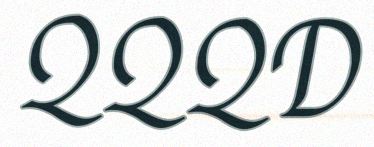
QQQD